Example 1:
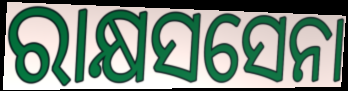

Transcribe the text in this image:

ରାକ୍ଷସସେନା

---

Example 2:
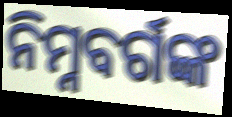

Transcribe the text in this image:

ନିମ୍ନବର୍ଗଙ୍କ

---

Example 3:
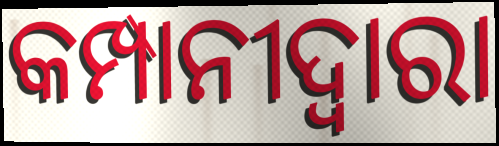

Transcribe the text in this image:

କମ୍ପାନୀଦ୍ୱାରା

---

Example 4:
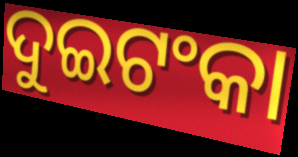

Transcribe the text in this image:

ଦୁଇଟଂକା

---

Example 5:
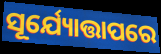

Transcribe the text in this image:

ସୂର୍ଯ୍ୟୋତ୍ତାପରେ